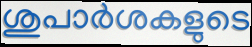
ശുപാർശകളുടെ